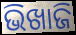
ଭିଖାଜି